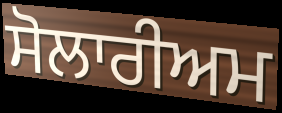
ਸੋਲਾਰੀਅਮ